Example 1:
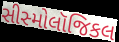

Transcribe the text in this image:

સીસ્મોલૉજિકલ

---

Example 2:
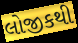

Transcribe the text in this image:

લોજીકથી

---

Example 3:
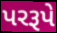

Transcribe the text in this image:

પરરૂપે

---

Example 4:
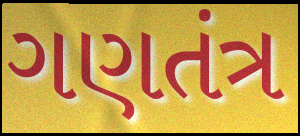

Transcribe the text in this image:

ગણતંત્ર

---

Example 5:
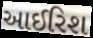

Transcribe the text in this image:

આઈરિશ